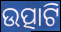
ଉତ୍ପାଟି